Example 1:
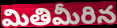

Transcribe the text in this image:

మితిమీరిన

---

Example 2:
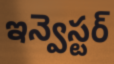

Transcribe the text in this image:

ఇన్వెస్టర్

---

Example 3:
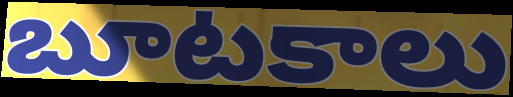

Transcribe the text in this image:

బూటకాలు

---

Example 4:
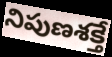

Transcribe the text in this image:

నిపుణశక్తే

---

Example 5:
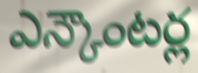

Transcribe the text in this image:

ఎన్కౌంటర్ల